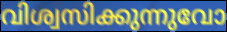
വിശ്വസിക്കുന്നുവോ